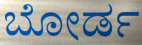
ಬೋರ್ಡ